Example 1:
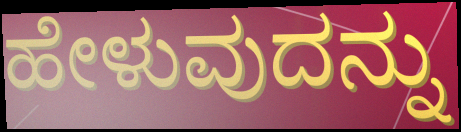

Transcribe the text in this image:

ಹೇಳುವುದನ್ನು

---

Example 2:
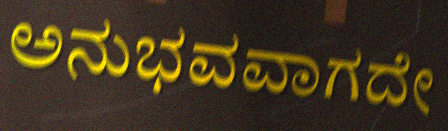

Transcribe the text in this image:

ಅನುಭವವಾಗದೇ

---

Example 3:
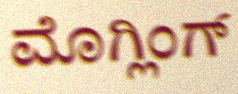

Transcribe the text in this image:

ಮೊಗ್ಲಿಂಗ್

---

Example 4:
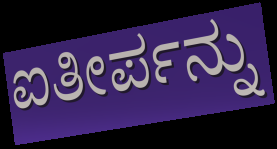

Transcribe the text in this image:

ಐತೀರ್ಪನ್ನು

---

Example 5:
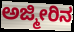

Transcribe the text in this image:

ಅಜ್ಮೀರಿನ